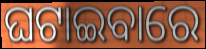
ଘଟାଇବାରେ